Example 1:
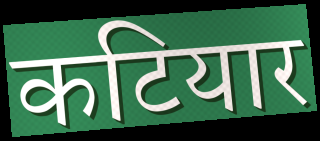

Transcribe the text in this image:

कटियार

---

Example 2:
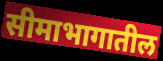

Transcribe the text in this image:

सीमाभागातील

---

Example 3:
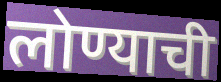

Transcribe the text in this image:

लोण्याची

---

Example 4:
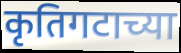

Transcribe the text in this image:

कृतिगटाच्या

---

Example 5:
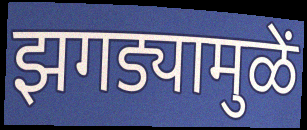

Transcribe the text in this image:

झगड्यामुळें